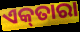
ଏକ୍‌ତାରା